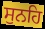
ਸੁਨਹਿ